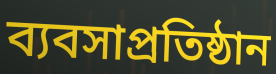
ব্যবসাপ্রতিষ্ঠান